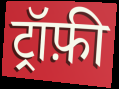
ट्रॉफ़ी